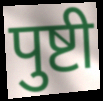
पुष्टी